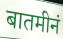
बातमीनं